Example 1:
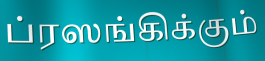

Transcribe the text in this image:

ப்ரஸங்கிக்கும்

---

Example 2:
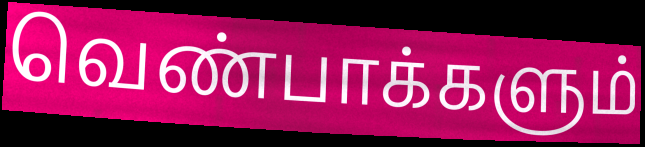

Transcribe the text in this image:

வெண்பாக்களும்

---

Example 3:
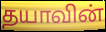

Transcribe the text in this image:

தயாவின்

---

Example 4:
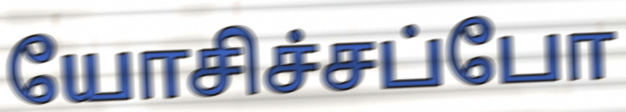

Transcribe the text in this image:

யோசிச்சப்போ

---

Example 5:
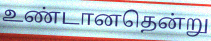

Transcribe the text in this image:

உண்டானதென்று